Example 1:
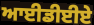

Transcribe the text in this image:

ਆਈਡੀਈਏ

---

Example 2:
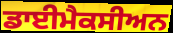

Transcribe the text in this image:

ਡਾਈਮੈਕਸੀਅਨ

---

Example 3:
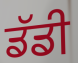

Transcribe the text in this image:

ਡੱਡੀ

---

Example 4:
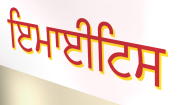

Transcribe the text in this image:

ਇਮਾਈਟਿਸ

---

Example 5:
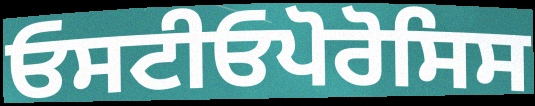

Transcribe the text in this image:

ਓਸਟੀਓਪੋਰੋਸਿਸ